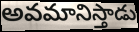
అవమానిస్తాడు